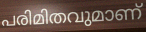
പരിമിതവുമാണ്